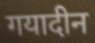
गयादीन